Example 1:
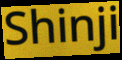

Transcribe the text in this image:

Shinji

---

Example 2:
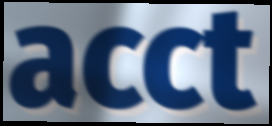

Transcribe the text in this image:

acct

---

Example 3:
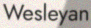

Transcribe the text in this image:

Wesleyan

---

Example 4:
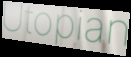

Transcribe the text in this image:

Utopian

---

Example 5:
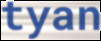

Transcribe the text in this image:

tyan